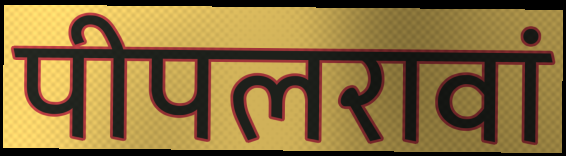
पीपलरावां